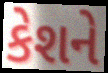
કેશને